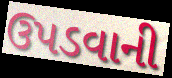
ઉપડવાની